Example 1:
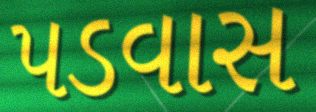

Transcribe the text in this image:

પડવાસ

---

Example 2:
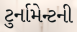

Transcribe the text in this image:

ટુર્નામેન્ટની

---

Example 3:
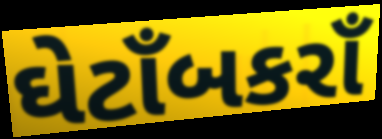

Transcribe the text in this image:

ઘેટાઁબકરાઁ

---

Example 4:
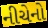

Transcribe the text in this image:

નીચેનો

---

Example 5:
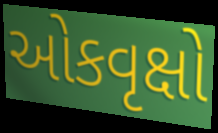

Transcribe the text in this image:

ઓકવૃક્ષો